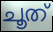
ചൂത്